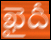
ఖైదీ